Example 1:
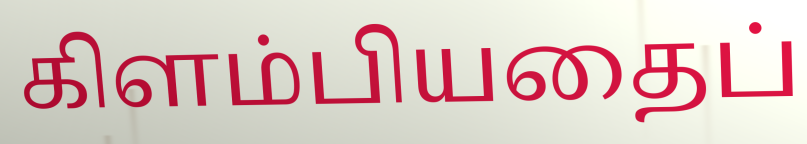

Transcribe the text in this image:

கிளம்பியதைப்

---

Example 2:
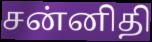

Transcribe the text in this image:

சன்னிதி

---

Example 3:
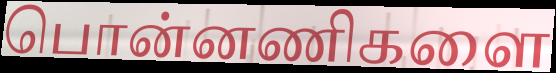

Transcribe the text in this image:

பொன்னணிகளை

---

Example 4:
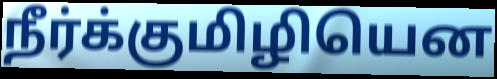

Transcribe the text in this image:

நீர்க்குமிழியென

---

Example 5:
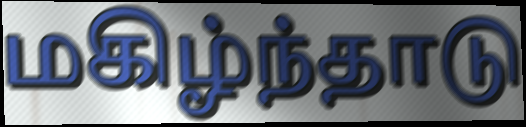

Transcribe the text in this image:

மகிழ்ந்தாடு